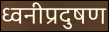
ध्वनीप्रदुषण